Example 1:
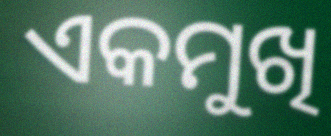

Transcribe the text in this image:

ଏକମୁଖି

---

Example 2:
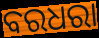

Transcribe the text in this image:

ବରଧରା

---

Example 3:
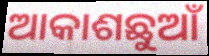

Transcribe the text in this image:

ଆକାଶଛୁଆଁ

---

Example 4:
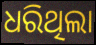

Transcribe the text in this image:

ଧରିଥିଲା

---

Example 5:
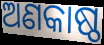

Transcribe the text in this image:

ଅଣକାଷ୍ଠ